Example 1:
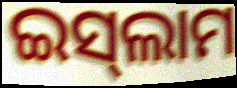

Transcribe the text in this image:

ଇସ୍‌ଲାମ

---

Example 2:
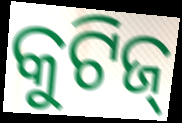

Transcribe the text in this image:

କୁଟିଜ୍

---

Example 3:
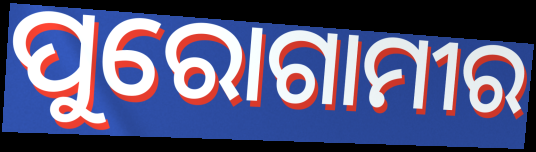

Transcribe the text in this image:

ପୁରୋଗାମୀର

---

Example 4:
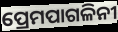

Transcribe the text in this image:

ପ୍ରେମପାଗଳିନୀ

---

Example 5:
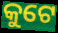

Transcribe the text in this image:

କୁଟେ